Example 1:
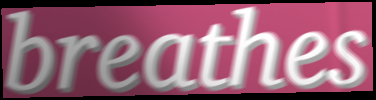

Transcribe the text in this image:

breathes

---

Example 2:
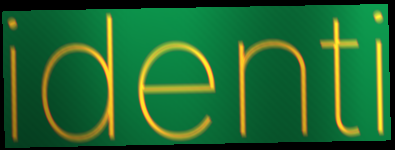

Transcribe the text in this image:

identi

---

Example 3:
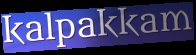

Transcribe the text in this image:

kalpakkam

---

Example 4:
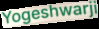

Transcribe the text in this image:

Yogeshwarji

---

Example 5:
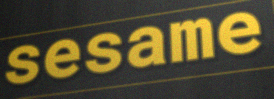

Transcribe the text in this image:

sesame